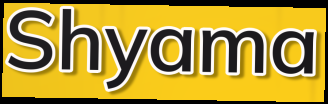
Shyama